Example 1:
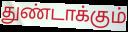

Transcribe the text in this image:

துண்டாக்கும்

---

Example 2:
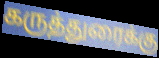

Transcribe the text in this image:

கருத்துரைக்கு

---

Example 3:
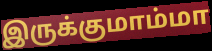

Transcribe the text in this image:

இருக்குமாம்மா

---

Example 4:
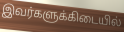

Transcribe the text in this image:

இவர்களுக்கிடையில்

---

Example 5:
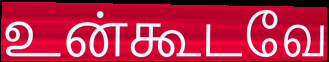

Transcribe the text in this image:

உன்கூடவே